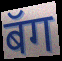
बॅग